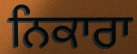
ਨਿਕਾਰਾ